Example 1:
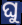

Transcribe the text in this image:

ଘୁ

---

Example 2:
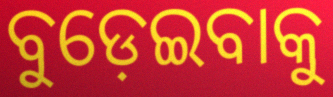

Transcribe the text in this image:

ବୁଡ଼େଇବାକୁ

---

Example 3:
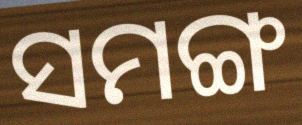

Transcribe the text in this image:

ସମଙ୍ଗ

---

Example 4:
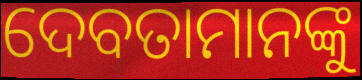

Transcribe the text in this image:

ଦେବତାମାନଙ୍କୁ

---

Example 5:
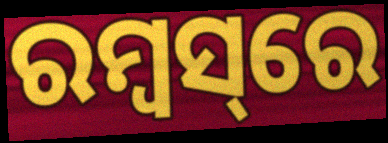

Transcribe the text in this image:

ରମ୍ବସ୍‌ରେ